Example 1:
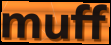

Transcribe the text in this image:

muff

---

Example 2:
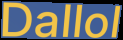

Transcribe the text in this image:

Dallol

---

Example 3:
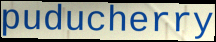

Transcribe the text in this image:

puducherry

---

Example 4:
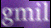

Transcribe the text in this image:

gmil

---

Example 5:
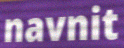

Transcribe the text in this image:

navnit